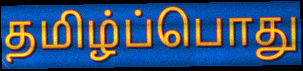
தமிழ்ப்பொது